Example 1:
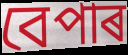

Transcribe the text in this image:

বেপাৰ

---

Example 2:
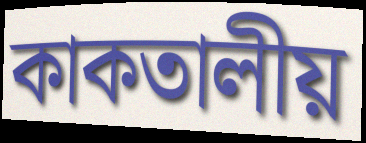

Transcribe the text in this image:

কাকতালীয়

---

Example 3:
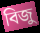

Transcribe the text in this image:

বিজু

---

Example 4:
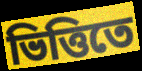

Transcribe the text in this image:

ভিত্তিতে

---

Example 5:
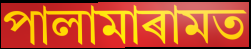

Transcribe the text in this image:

পালামাৰামত